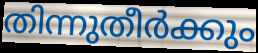
തിന്നുതീർക്കും